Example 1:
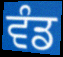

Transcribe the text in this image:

ਵੰਡ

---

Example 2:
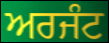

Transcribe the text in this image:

ਅਰਜੰਟ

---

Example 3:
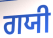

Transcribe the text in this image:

ਗਯੀ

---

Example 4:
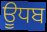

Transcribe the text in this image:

ਊਧਬ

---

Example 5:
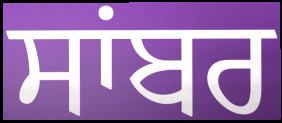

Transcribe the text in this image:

ਸਾਂਬਰ